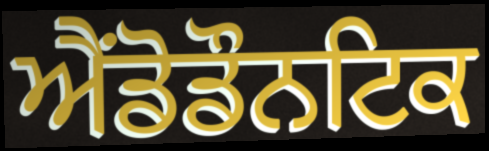
ਐਂਡੋਡੌਨਟਿਕ